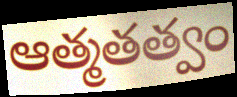
ఆత్మతత్వం